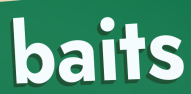
baits